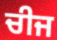
ਚੀਜ